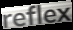
reflex